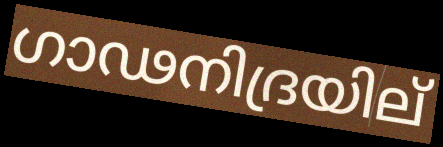
ഗാഢനിദ്രയില്